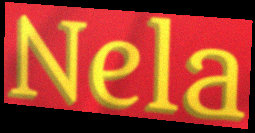
Nela